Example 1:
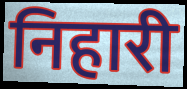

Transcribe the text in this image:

निहारी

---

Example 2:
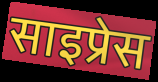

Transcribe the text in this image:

साइप्रेस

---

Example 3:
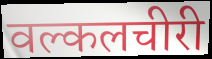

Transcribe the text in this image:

वल्कलचीरी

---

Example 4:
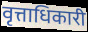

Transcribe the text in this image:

वृत्ताधिकारी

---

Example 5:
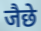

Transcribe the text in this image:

जैछे